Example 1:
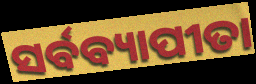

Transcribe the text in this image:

ସର୍ବବ୍ୟାପୀତା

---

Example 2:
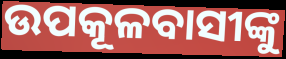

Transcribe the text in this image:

ଉପକୂଳବାସୀଙ୍କୁ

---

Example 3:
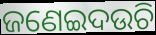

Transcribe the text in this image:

ଜଣେଇଦଉଚି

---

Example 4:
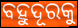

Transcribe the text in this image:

ବହୁଦୂରକୁ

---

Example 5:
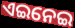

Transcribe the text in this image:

ଏଇନେଇ